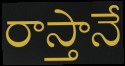
రాస్తానే